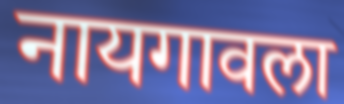
नायगावला